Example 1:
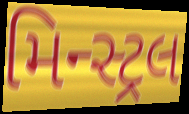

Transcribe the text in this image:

મિન્સ્ટ્રલ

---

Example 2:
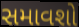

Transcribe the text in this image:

સમાવશો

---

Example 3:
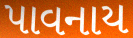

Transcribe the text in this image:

પાવનાય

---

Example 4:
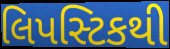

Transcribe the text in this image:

લિપસ્ટિકથી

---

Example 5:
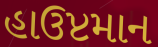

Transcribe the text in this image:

હાઉપ્ટમાન